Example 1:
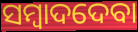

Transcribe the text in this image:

ସମ୍ବାଦଦେବା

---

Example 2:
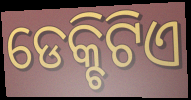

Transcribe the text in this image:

ଡେକ୍ଚିଟିଏ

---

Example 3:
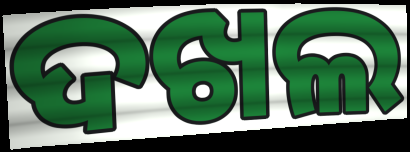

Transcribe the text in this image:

ଦଖଲ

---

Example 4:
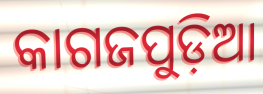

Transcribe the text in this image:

କାଗଜପୁଡ଼ିଆ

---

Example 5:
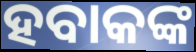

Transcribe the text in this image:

ହବାକଙ୍କ